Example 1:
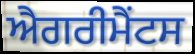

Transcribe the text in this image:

ਐਗਰੀਮੈਂਟਸ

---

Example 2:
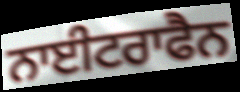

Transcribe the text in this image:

ਨਾਈਟਰਾਫੈਨ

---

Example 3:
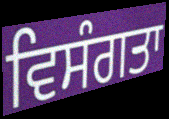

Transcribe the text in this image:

ਵਿਸੰਗਤਾ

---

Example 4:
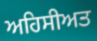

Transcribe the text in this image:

ਅਹਿਸੀਅਤ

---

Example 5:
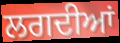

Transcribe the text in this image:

ਲਗਦੀਆਂ